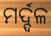
ମର୍ଦ୍ଦଳ